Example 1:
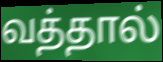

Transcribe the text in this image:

வத்தால்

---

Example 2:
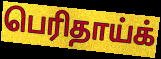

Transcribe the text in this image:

பெரிதாய்க்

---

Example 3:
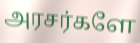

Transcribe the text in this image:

அரசர்களே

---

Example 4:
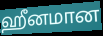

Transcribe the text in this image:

ஹீனமான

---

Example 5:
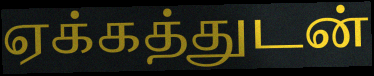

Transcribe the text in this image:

ஏக்கத்துடன்